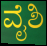
ವೈಶಿ